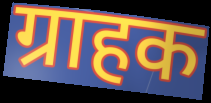
ग्राहक